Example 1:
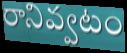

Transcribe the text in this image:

రానివ్వటం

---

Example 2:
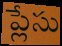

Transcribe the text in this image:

ప్లేసు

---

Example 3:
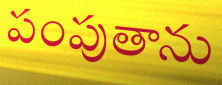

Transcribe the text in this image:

పంపుతాను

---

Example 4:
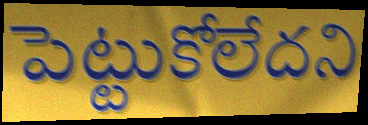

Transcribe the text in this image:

పెట్టుకోలేదని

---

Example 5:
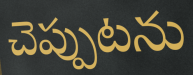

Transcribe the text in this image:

చెప్పుటను